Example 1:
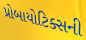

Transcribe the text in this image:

પ્રોબાયોટિક્સની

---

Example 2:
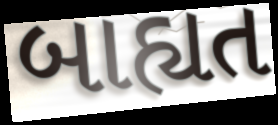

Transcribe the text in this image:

બાહ્યત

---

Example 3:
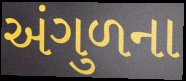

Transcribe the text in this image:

અંગુળના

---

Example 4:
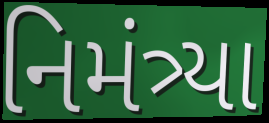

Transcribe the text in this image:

નિમંત્ર્યા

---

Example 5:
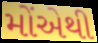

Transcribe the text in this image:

મોંએથી